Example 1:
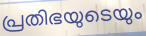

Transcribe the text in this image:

പ്രതിഭയുടെയും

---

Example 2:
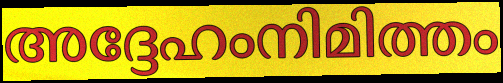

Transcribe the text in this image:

അദ്ദേഹംനിമിത്തം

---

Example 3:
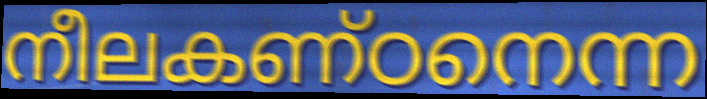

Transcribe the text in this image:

നീലകണ്ഠനെന്ന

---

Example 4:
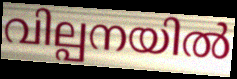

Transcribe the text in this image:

വില്പനയിൽ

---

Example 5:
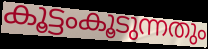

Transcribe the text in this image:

കൂട്ടംകൂടുന്നതും